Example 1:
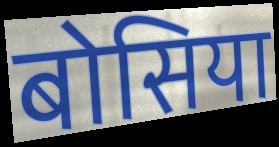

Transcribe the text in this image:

बोसिया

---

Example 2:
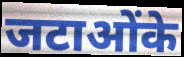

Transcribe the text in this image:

जटाओंके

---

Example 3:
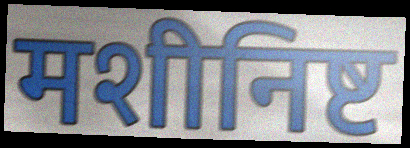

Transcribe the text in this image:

मशीनिष्ट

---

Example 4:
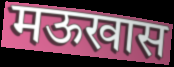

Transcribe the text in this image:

मऊखास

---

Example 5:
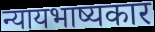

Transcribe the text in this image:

न्यायभाष्यकार